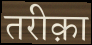
तरीक़ा